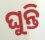
ଘୁନ୍ତି